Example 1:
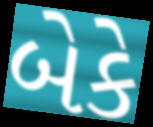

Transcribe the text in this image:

બેકે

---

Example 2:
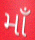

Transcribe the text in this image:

માઁ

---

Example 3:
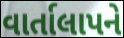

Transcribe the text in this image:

વાર્તાલાપને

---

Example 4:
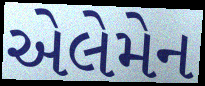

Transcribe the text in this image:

એલેમેન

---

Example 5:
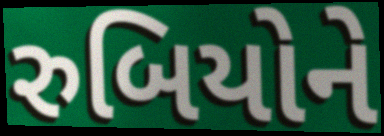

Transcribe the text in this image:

રુબિયોને